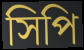
সিপি